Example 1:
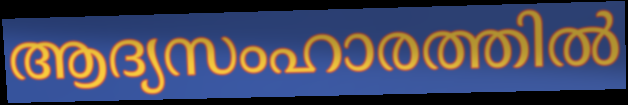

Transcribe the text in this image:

ആദ്യസംഹാരത്തിൽ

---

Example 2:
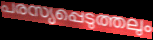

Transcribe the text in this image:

പരസ്യപ്പെടുത്തലും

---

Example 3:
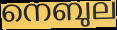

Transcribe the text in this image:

നെബുല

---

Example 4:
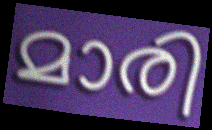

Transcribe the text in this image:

മാരി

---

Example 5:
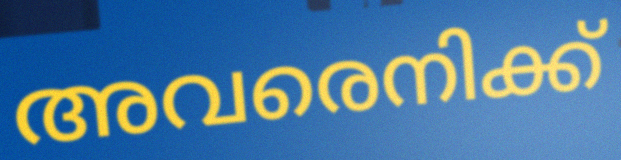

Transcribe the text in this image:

അവരെനിക്ക്